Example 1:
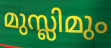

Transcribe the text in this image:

മുസ്ലിമും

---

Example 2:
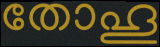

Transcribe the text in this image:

തോഹൂ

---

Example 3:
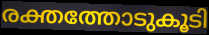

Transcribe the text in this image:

രക്തത്തോടുകൂടി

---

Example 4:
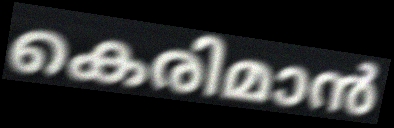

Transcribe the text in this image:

കെരിമാൻ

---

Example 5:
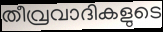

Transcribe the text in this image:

തീവ്രവാദികളുടെ